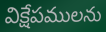
విక్షేపములను